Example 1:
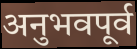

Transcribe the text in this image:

अनुभवपूर्व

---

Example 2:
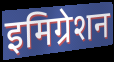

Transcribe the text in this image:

इमिग्रेशन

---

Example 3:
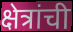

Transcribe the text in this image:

क्षेत्रांची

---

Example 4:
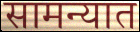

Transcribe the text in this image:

सामन्यात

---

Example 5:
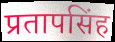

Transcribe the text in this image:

प्रतापसिंह